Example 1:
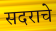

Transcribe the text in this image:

सदराचे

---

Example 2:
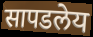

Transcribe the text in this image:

सापडलेय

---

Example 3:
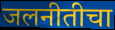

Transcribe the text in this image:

जलनीतीचा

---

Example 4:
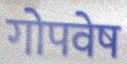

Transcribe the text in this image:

गोपवेष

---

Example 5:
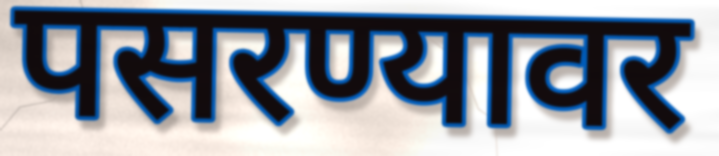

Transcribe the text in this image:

पसरण्यावर